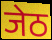
जेठ